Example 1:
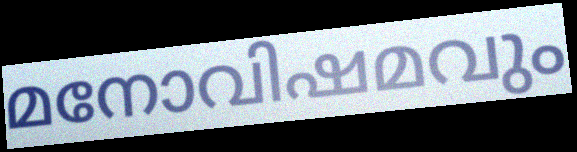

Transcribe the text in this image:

മനോവിഷമവും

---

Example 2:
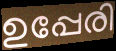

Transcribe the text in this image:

ഉപ്പേരി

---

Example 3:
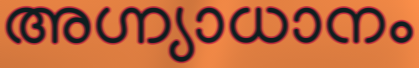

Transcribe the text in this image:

അഗ്ന്യാധാനം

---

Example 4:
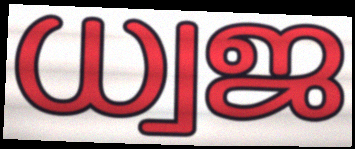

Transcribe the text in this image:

ധ്വജ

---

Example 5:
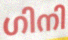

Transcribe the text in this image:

ഗിനി